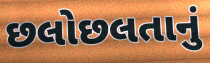
છલોછલતાનું